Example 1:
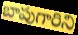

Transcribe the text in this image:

బాపుగారిని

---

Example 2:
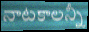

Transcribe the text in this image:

నాటకాలన్నీ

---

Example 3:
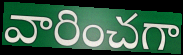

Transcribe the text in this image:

వారించగా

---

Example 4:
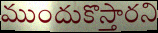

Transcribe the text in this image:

ముందుకొస్తారని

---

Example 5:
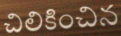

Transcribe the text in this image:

చిలికించిన